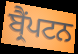
ਬ੍ਰੈਂਪਟਨ